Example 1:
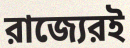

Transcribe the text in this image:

রাজ্যেরই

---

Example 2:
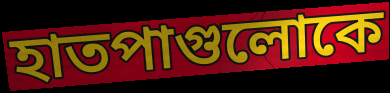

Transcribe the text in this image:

হাতপাগুলোকে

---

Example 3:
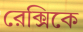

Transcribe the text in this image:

রেক্সিকে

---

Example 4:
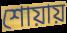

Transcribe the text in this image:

শোয়ায়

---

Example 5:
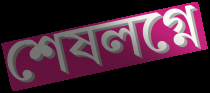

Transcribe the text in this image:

শেষলগ্নে